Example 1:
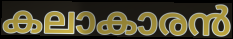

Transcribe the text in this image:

കലാകാരൻ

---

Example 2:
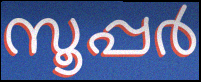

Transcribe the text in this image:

സൂപ്പർ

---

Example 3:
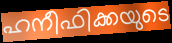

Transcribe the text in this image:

ഹനീഫിക്കയുടെ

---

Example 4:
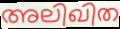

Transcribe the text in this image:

അലിഖിത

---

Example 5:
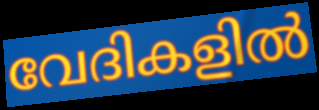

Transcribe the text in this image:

വേദികളിൽ